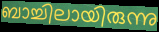
ബാച്ചിലായിരുന്നു